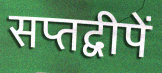
सप्तद्वीपें